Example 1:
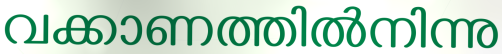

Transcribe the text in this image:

വക്കാണത്തിൽനിന്നു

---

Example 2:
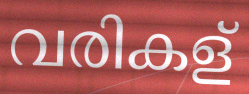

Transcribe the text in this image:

വരികള്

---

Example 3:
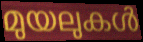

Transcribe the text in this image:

മുയലുകൾ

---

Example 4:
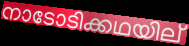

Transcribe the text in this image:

നാടോടിക്കഥയില്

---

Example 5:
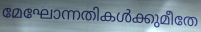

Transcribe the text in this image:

മേഘോന്നതികൾക്കുമീതേ